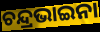
ଚନ୍ଦ୍ରଭାଇନା